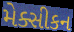
મેક્સીકન